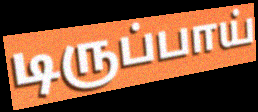
டிருப்பாய்